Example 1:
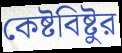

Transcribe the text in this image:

কেষ্টবিষ্টুর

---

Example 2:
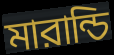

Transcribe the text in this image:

মারান্ডি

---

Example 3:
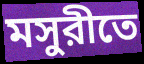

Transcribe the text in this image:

মসুরীতে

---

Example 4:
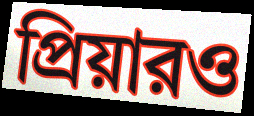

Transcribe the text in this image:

প্রিয়ারও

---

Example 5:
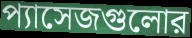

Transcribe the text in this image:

প্যাসেজগুলোর